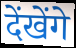
देंखेंगे